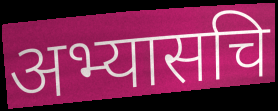
अभ्यासचि